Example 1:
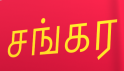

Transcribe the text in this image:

சங்கர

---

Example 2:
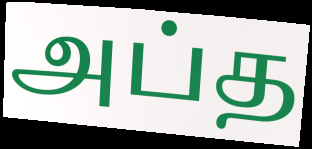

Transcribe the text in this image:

அப்த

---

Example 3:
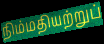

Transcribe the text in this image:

நிம்மதியற்றுப்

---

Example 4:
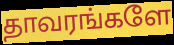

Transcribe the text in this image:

தாவரங்களே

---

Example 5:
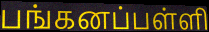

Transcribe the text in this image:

பங்கனப்பள்ளி